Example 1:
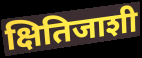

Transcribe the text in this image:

क्षितिजाशी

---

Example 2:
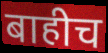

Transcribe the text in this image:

बाहीच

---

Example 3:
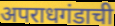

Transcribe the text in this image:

अपराधगंडाची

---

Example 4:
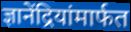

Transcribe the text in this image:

ज्ञानेंद्रियांमार्फत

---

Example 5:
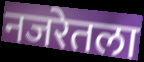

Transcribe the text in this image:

नजरेतला